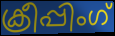
ക്രീപ്പിംഗ്